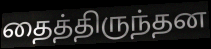
தைத்திருந்தன